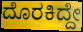
ದೊರಕಿದ್ದೇ